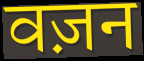
वज़न